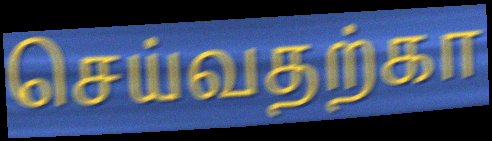
செய்வதற்கா